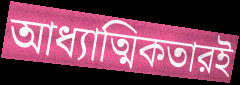
আধ্যাত্মিকতারই